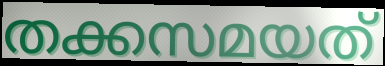
തക്കസമയത്